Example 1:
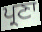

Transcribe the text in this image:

ਪ੍ਰਣਾ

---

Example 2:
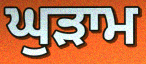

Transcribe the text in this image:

ਘੁੜਾਮ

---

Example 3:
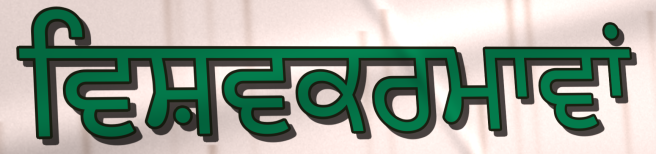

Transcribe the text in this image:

ਵਿਸ਼ਵਕਰਮਾਵਾਂ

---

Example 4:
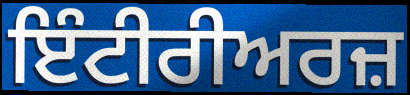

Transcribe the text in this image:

ਇੰਟੀਰੀਅਰਜ਼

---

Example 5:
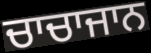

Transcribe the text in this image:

ਚਾਚਾਜਾਨ